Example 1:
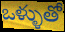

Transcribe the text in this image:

ఒళ్ళుతో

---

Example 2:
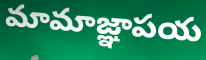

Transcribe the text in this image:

మామాజ్ఞాపయ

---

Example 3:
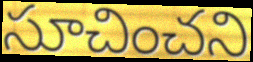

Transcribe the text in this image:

సూచించని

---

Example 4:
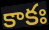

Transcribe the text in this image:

కాకః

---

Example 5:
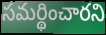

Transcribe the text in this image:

సమర్థించారని